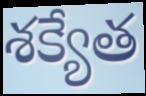
శక్యేత